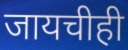
जायचीही